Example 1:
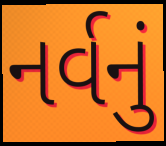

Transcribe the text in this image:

નર્વનું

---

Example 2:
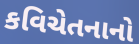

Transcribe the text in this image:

કવિચેતનાનો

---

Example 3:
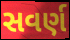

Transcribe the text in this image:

સવર્ણ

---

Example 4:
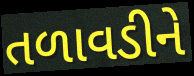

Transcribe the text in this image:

તળાવડીને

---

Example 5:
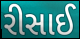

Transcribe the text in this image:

રીસાઈ